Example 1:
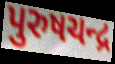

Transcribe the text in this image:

પુરુષચન્દ્ર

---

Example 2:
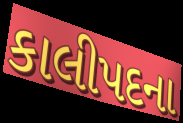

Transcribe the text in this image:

કાલીપદના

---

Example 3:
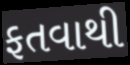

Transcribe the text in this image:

ફતવાથી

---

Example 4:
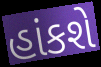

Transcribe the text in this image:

હાંકશે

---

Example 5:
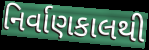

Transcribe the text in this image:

નિર્વાણકાલથી